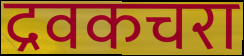
द्रवकचरा